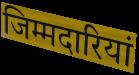
जिम्मदारियां